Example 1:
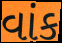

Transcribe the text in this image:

વાંક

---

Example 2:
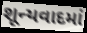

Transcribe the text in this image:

શૂન્યવાદમાં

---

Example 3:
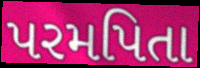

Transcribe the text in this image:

પરમપિતા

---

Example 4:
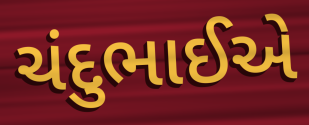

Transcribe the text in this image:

ચંદુભાઈએ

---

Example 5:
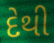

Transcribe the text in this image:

દેથી